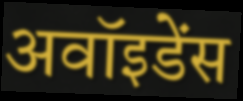
अवॉइडेंस